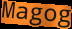
Magog